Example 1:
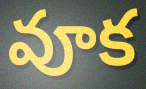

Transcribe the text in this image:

వూక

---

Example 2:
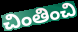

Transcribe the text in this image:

చింతించి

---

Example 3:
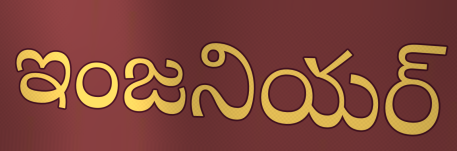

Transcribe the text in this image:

ఇంజనియర్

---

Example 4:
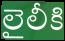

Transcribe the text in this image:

లైలీకి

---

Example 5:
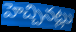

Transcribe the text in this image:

హెచ్చినట్లు